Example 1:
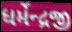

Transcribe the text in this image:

ધર્મેન્દ્રજી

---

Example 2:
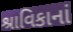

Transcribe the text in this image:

શ્રાવિકાનાં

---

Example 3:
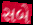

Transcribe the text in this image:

સબે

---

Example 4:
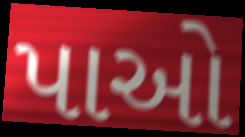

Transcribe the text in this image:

પાઓ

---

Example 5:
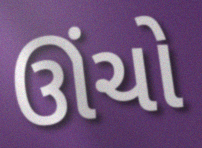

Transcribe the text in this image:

ઊંચો